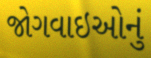
જોગવાઇઓનું